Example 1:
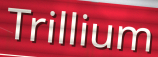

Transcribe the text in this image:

Trillium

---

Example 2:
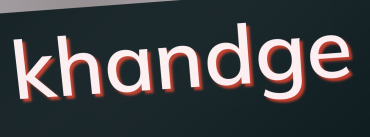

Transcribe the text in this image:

khandge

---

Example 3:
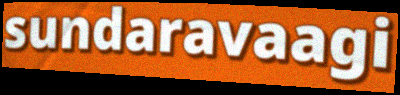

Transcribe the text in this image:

sundaravaagi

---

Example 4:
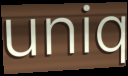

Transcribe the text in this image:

uniq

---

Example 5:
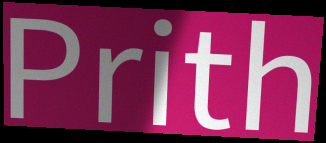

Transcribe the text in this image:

Prith